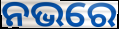
ନଭରେ